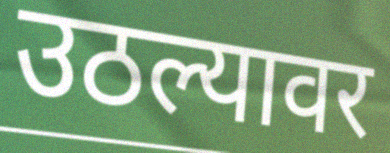
उठल्यावर